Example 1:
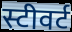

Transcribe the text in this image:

स्टीवर्ट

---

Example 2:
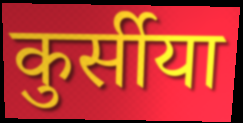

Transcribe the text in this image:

कुर्सीया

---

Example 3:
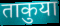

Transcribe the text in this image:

ताकुया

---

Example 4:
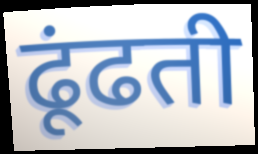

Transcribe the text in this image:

ढूंढती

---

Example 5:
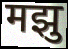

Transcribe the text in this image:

मझु